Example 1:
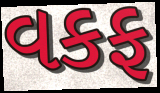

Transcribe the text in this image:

વકફ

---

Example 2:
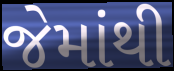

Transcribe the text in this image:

જેમાંથી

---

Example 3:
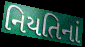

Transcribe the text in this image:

નિયતિનાં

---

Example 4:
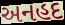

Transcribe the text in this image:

અનહદ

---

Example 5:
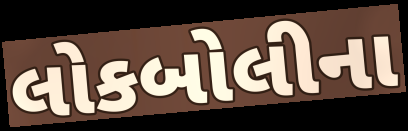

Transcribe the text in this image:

લોકબોલીના